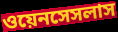
ওয়েনসেসলাস